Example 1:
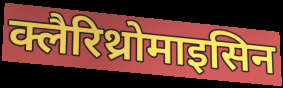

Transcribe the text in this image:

क्लैरिथ्रोमाइसिन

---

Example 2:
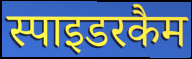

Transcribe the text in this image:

स्पाइडरकैम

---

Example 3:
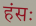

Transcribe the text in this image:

हंसः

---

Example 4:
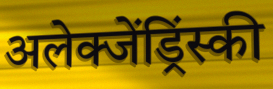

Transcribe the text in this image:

अलेक्जेंड्रिंस्की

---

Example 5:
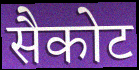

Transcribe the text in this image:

सैकोट